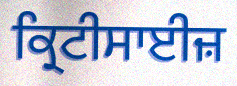
ਕ੍ਰਿਟੀਸਾਈਜ਼